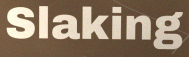
Slaking